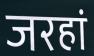
जरहां